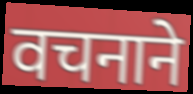
वचनाने